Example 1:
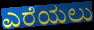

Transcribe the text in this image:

ಎರೆಯಲು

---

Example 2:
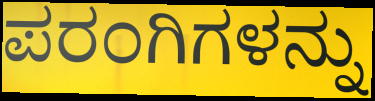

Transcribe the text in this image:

ಪರಂಗಿಗಳನ್ನು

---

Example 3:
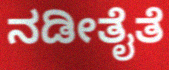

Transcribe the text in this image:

ನಡೀತೈತೆ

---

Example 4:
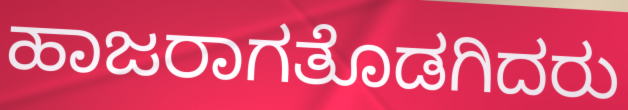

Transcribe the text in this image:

ಹಾಜರಾಗತೊಡಗಿದರು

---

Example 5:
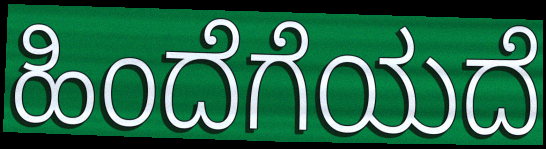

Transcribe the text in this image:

ಹಿಂದೆಗೆಯದೆ